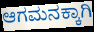
ಆಗಮನಕ್ಕಾಗಿ